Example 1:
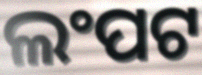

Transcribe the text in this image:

ଲଂପଟ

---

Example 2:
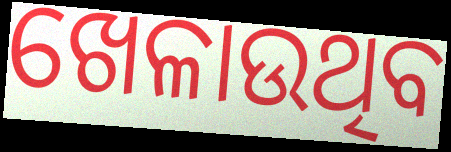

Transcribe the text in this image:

ଖେଳାଉଥିବ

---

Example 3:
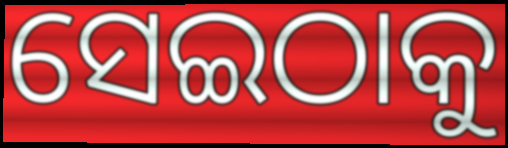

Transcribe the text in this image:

ସେଇଠାକୁ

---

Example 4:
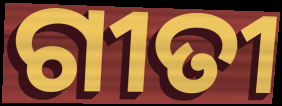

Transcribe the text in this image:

ଗୀତୀ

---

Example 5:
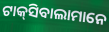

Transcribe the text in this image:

ଟାକ୍‌ସିବାଲାମାନେ